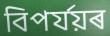
বিপৰ্যয়ৰ